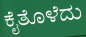
ಕೈತೊಳೆದು